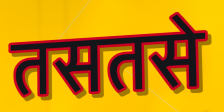
तसतसे